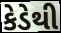
કેડેથી